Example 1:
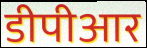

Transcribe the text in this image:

डीपीआर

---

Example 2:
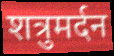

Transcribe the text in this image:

शत्रुमर्दन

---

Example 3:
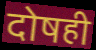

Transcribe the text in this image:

दोषही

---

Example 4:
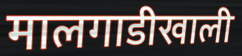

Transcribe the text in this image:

मालगाडीखाली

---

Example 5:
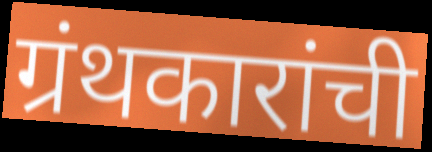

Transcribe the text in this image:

ग्रंथकारांची